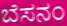
ಬೆಸನಂ